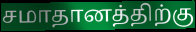
சமாதானத்திற்கு